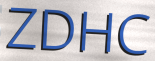
ZDHC